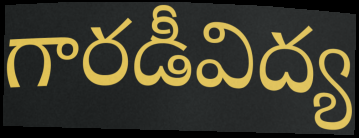
గారడీవిద్య